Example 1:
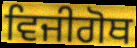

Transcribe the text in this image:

ਵਿਜੀਗੋਥ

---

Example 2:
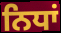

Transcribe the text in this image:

ਨਿਧਾਂ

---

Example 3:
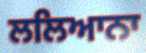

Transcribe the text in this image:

ਲਲਿਆਨਾ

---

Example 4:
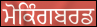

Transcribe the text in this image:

ਮੋਕਿੰਗਬਰਡ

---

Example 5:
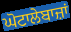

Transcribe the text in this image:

ਘੋਟਾਲੇਬਾਜ਼ਾਂ